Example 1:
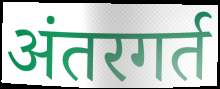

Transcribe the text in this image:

अंतरगर्त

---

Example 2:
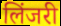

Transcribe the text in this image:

लिंजरी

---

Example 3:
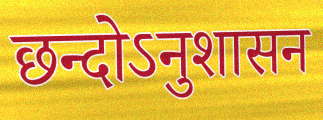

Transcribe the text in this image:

छन्दोऽनुशासन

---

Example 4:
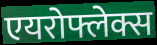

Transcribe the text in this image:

एयरोफ्लेक्स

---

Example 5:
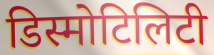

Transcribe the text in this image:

डिस्मोटिलिटी